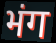
भंग